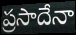
ప్రసాదేనా